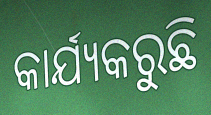
କାର୍ଯ୍ୟକରୁଛି